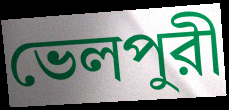
ভেলপুরী